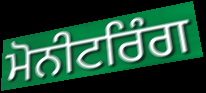
ਮੋਨੀਟਰਿੰਗ